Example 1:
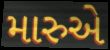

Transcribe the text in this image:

મારુએ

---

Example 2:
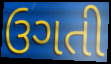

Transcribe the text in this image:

ઉગતી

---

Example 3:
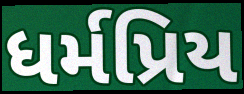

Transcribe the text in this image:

ધર્મપ્રિય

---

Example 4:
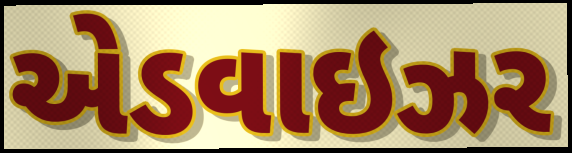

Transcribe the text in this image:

એડવાઇઝર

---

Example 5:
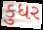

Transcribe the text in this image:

કુધર